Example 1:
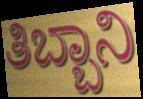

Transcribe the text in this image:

ತಿಬ್ಬಾನಿ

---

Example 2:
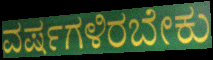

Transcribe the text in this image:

ವರ್ಷಗಳಿರಬೇಕು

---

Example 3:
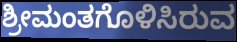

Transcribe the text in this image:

ಶ್ರೀಮಂತಗೊಳಿಸಿರುವ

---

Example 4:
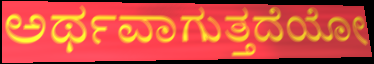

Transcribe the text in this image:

ಅರ್ಥವಾಗುತ್ತದೆಯೋ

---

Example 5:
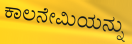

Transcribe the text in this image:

ಕಾಲನೇಮಿಯನ್ನು